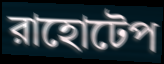
রাহোটেপ